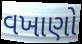
વખાણો